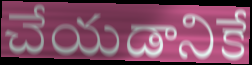
చేయడానికే